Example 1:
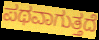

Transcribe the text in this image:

ಪಥವಾಗುತ್ತದೆ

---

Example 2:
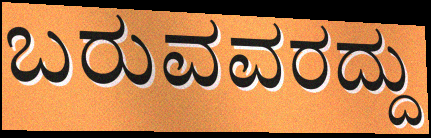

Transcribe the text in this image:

ಬರುವವರದ್ದು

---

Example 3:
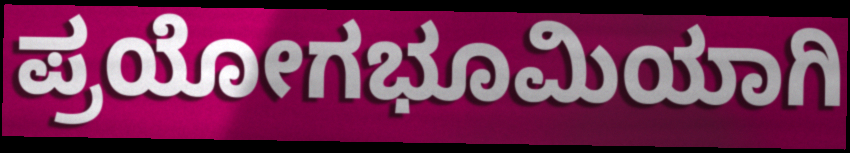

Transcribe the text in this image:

ಪ್ರಯೋಗಭೂಮಿಯಾಗಿ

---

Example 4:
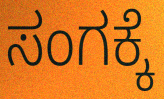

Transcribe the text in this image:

ಸಂಗಕ್ಕೆ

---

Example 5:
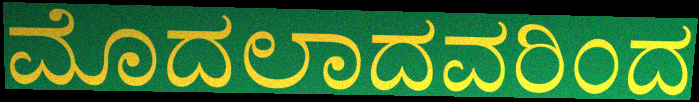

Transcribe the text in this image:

ಮೊದಲಾದವರಿಂದ